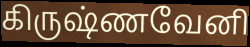
கிருஷ்ணவேனி